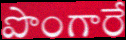
పొంగారే